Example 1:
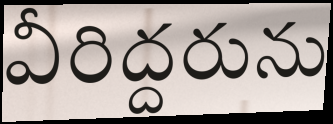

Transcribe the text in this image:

వీరిద్దరును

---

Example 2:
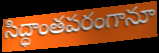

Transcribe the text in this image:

సిద్ధాంతపరంగానూ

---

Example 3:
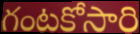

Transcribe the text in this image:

గంటకోసారి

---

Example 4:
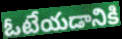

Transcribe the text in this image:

ఓటేయడానికి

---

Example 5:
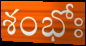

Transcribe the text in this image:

శంభోః